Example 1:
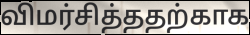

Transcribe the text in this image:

விமர்சித்ததற்காக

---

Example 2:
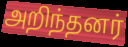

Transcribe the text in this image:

அறிந்தனர்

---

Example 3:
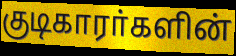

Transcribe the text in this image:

குடிகாரர்களின்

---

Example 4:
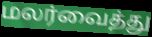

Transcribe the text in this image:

மலர்வைத்து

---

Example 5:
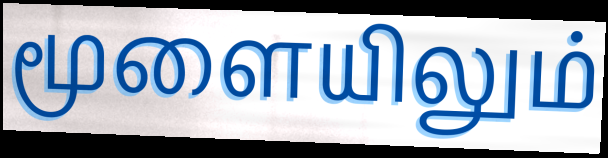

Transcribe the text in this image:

மூளையிலும்